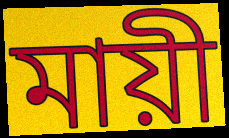
মায়ী